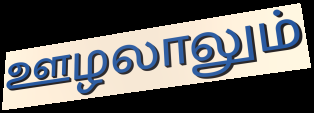
ஊழலாலும்